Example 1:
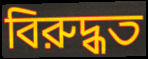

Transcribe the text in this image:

বিৰুদ্ধত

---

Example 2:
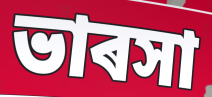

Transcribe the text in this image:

ভাৰসা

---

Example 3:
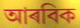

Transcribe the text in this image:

আৰবিক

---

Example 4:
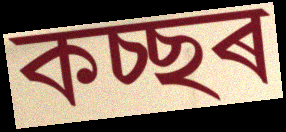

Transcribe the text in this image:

কচ্ছৰ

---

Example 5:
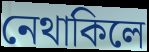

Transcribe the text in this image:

নেথাকিলে